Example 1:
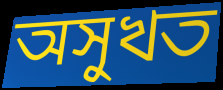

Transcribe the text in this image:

অসুখত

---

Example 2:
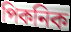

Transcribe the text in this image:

পিকনিক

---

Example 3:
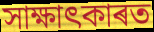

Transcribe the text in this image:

সাক্ষাৎকাৰত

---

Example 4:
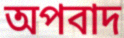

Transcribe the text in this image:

অপবাদ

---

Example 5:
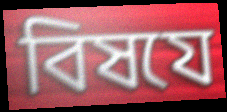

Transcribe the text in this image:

বিষযে